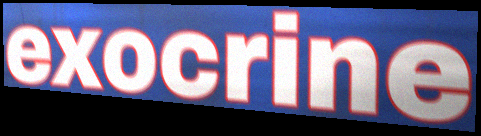
exocrine